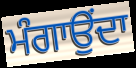
ਮੰਗਾਉਂਦਾ